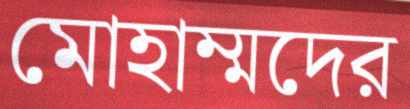
মোহাম্মদের